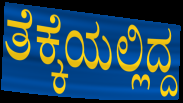
ತೆಕ್ಕೆಯಲ್ಲಿದ್ದ